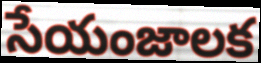
సేయంజాలక